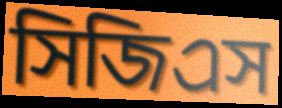
সিজিএস